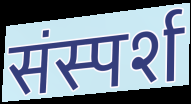
संस्पर्श